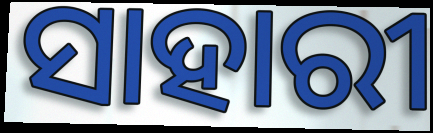
ସାହାରୀ